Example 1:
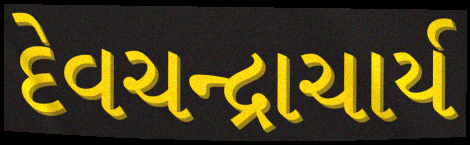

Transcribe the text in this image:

દેવચન્દ્રાચાર્ય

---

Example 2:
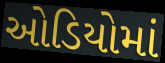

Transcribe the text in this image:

ઓડિયોમાં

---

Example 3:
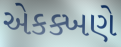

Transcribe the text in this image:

એકક્ખણે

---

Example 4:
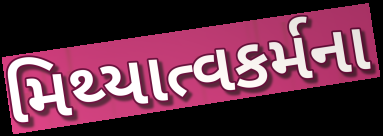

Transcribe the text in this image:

મિથ્યાત્વકર્મના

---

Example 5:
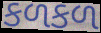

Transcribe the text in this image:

કળકળ